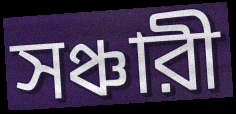
সঞ্চারী